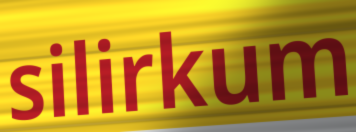
silirkum